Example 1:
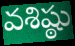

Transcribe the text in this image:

వశిష్ఠు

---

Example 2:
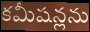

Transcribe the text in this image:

కమీషన్లను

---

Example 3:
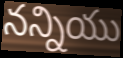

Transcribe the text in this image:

నన్నియు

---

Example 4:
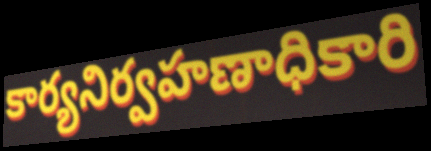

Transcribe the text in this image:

కార్యనిర్వహణాధికారి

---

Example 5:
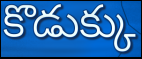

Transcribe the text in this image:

కొడుక్కు